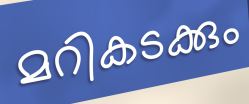
മറികടക്കും